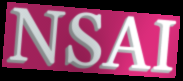
NSAI